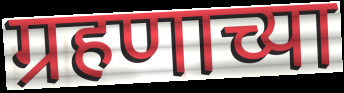
ग्रहणाच्या